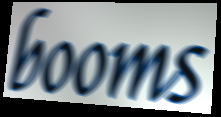
booms